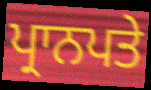
ਪ੍ਰਾਨਪਤੇ